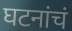
घटनांचं